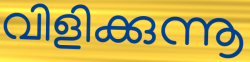
വിളിക്കുന്നൂ